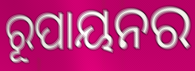
ରୂପାୟନର